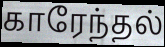
காரேந்தல்